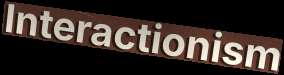
Interactionism